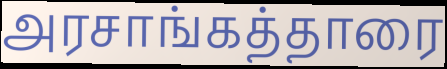
அரசாங்கத்தாரை